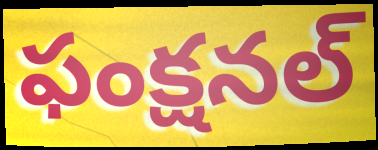
ఫంక్షనల్